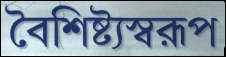
বৈশিষ্ট্যস্বরূপ